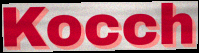
Kocch